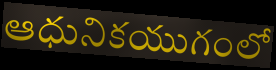
ఆధునికయుగంలో